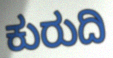
ಕುರುದಿ